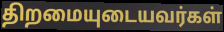
திறமையுடையவர்கள்